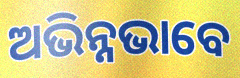
ଅଭିନ୍ନଭାବେ